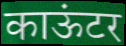
काऊंटर